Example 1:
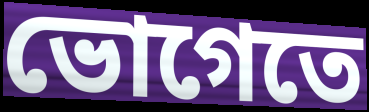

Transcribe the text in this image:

ভোগেতে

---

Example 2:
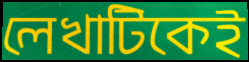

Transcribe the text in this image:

লেখাটিকেই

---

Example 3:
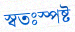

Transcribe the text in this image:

স্বতঃস্পষ্ট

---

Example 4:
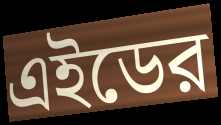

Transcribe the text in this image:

এইডের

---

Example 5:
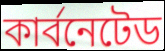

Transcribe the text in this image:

কার্বনেটেড